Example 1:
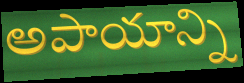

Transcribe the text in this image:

అపాయాన్ని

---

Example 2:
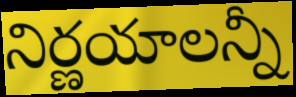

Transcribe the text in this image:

నిర్ణయాలన్నీ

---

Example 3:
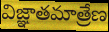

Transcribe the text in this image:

విజ్ఞాతమాత్రేణ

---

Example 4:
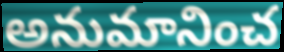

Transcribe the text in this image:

అనుమానించ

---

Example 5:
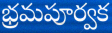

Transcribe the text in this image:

భ్రమపూర్వక